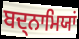
ਬਦ੍ਨਾਮਿਯਾਂ